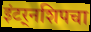
इंटर्नशिपचा